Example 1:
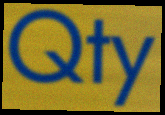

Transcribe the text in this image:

Qty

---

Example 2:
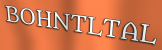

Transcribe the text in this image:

BOHNTLTAL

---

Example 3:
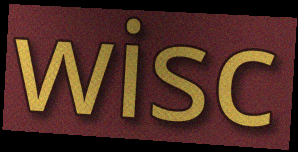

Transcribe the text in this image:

wisc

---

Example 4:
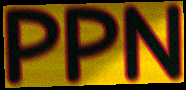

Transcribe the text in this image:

PPN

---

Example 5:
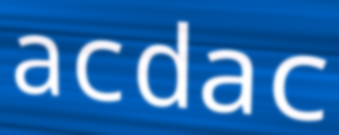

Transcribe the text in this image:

acdac